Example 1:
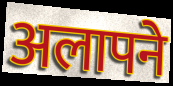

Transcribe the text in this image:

अलापने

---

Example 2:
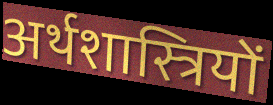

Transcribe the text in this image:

अर्थशास्त्रियों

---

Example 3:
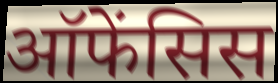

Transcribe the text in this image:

ऑफेंसिस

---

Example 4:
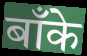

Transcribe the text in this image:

बाँके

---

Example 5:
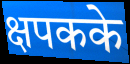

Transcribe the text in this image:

क्षपकके